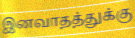
இனவாதத்துக்கு